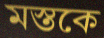
মস্তকে